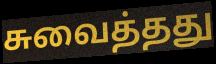
சுவைத்தது